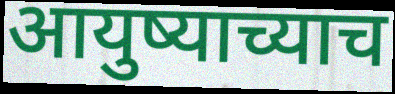
आयुष्याच्याच